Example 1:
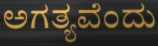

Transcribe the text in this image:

ಅಗತ್ಯವೆಂದು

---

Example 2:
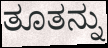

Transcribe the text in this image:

ತೂತನ್ನು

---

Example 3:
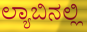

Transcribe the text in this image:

ಲ್ಯಾಬಿನಲ್ಲಿ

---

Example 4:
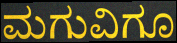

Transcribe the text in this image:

ಮಗುವಿಗೂ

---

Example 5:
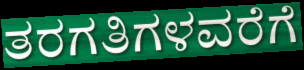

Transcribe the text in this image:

ತರಗತಿಗಳವರೆಗೆ